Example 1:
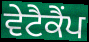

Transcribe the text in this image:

ਵੇਟੈਕੈਂਪ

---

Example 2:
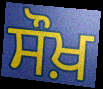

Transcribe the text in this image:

ਸੌਖ਼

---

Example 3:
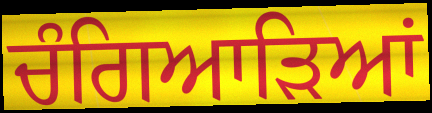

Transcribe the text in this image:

ਚੰਗਿਆੜਿਆਂ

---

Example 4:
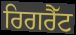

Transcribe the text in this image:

ਰਿਗਰੈੱਟ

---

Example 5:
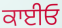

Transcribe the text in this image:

ਕਾਈਓ